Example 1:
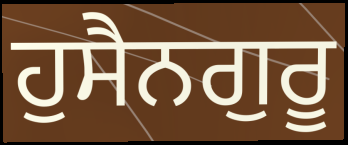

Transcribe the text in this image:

ਹੁਸੈਨਗੁਰੂ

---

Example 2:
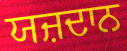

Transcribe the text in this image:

ਯਜ਼ਦਾਨ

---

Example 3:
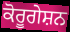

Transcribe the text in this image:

ਕੋਰੂਗੇਸ਼ਨ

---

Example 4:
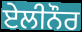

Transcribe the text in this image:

ਏਲੀਨੌਰ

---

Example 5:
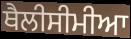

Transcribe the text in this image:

ਥੈਲੀਸੀਮੀਆ